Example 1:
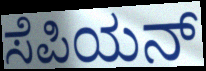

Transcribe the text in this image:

ಸೆಪಿಯನ್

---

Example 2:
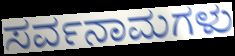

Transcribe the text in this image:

ಸರ್ವನಾಮಗಳು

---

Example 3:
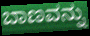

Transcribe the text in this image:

ಬಾಣವನ್ನು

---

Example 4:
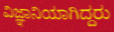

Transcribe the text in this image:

ವಿಜ್ಞಾನಿಯಾಗಿದ್ದರು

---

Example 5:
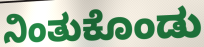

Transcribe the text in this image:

ನಿಂತುಕೊಂಡು